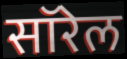
सॉरेल